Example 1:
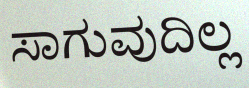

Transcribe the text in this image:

ಸಾಗುವುದಿಲ್ಲ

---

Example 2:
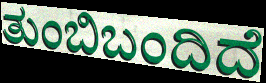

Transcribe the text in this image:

ತುಂಬಿಬಂದಿದೆ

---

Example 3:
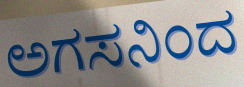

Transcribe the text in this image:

ಅಗಸನಿಂದ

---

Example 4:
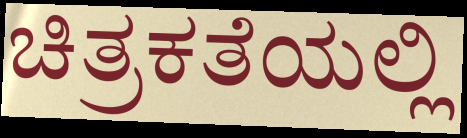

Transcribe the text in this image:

ಚಿತ್ರಕತೆಯಲ್ಲಿ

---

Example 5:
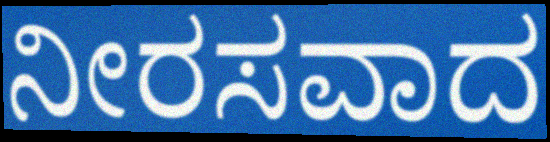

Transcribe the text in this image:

ನೀರಸವಾದ